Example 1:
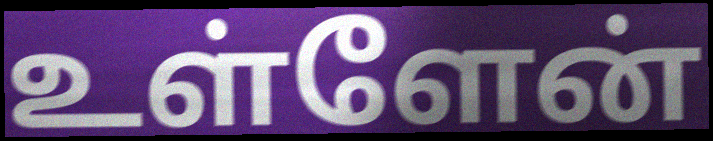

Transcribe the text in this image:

உள்ளேன்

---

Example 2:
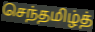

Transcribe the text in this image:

செந்தமிழ்த்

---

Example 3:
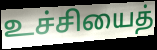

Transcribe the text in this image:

உச்சியைத்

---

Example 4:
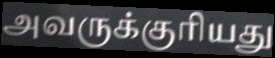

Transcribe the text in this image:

அவருக்குரியது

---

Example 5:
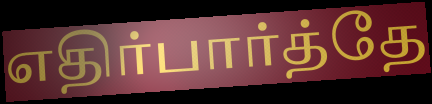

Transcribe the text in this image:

எதிர்பார்த்தே